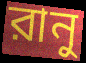
রানু